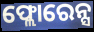
ଫ୍ଲୋରେନ୍ସ